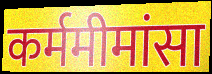
कर्ममीमांसा